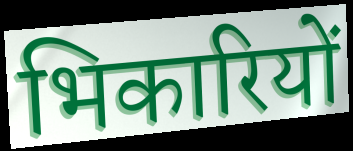
भिकारियों